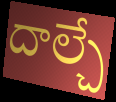
దాల్చే